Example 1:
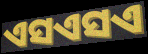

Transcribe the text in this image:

ଏସଏସଏ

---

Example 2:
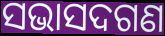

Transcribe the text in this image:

ସଭାସଦଗଣ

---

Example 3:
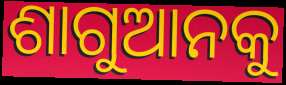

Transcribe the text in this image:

ଶାଗୁଆନକୁ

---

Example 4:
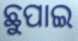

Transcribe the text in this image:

ଛୁପାଇ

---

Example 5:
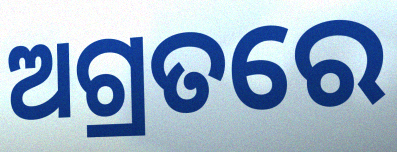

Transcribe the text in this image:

ଅଗ୍ରତରେ